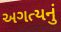
અગત્યનું